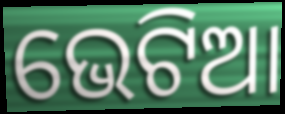
ଭେଟିଆ